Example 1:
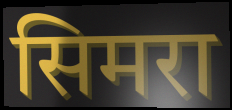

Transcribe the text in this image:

सिमरा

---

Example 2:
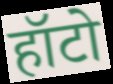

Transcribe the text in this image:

हॉटो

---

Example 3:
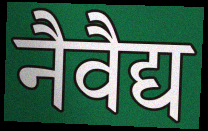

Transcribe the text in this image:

नैवैद्य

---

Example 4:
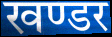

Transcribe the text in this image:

खण्डर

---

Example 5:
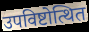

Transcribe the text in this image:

उपविष्टोत्थित